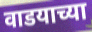
वाडयाच्या